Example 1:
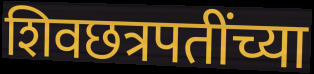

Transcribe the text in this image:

शिवछत्रपतींच्या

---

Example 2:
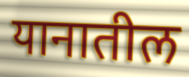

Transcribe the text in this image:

यानातील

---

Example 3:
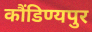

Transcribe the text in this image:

कौंडिण्यपुर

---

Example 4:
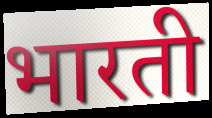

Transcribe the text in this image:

भारती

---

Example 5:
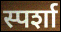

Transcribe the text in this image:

स्पर्शा